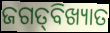
ଜଗତ୍‌ବିଖ୍ୟାତ